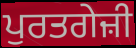
ਪੁਰਤਗੇਜ਼ੀ